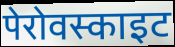
पेरोवस्काइट